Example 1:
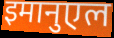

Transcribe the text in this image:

इमानुएल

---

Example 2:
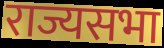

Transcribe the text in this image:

राज्यसभा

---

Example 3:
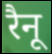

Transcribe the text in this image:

रैनू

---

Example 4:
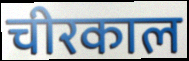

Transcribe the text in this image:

चीरकाल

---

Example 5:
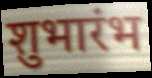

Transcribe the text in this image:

शुभारंभ